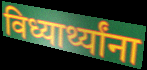
विध्यार्थ्यांना